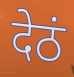
देठं